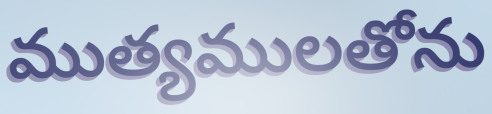
ముత్యములతోను